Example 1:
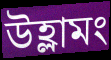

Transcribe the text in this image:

উহ্লামং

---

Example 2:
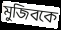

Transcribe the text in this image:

মুজিবকে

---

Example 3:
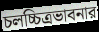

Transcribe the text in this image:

চলচ্চিত্রভাবনার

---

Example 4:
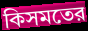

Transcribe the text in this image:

কিসমতের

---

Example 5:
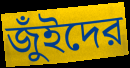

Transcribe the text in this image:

জুঁইদের